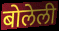
बोलेली